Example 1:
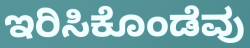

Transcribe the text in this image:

ಇರಿಸಿಕೊಂಡೆವು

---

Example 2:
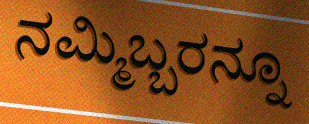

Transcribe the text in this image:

ನಮ್ಮಿಬ್ಬರನ್ನೂ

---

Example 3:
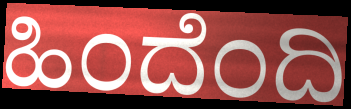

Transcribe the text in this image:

ಹಿಂದೆಂದಿ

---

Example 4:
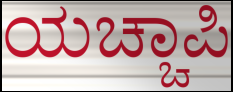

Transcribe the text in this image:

ಯಚ್ಚಾಪಿ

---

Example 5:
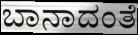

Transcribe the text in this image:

ಬಾನಾದಂತೆ